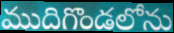
ముదిగొండలోను